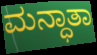
ಮನ್ಧಾತಾ